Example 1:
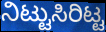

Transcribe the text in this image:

ನಿಟ್ಟುಸಿರಿಟ್ಟ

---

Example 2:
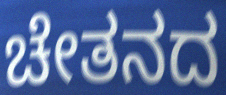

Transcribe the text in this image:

ಚೇತನದ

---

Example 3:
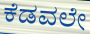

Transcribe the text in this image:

ಕೆಡವಲೇ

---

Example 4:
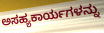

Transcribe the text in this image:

ಅಸಹ್ಯಕಾರ್ಯಗಳನ್ನು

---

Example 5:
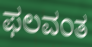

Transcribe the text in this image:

ಫಲವಂತ